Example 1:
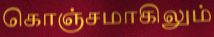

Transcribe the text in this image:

கொஞ்சமாகிலும்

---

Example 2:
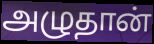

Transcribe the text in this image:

அழுதான்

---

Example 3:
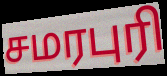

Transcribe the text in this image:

சமரபுரி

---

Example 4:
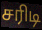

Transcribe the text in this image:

சரிடி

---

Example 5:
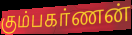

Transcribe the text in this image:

கும்பகர்ணன்